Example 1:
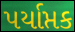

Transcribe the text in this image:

પર્યાપ્તક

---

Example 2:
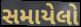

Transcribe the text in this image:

સમાયેલો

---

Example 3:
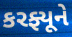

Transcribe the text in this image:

કરફ્યૂને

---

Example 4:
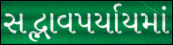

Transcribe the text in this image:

સદ્ભાવપર્યાયમાં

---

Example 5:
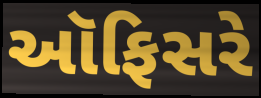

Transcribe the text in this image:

ઑફિસરે